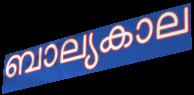
ബാല്യകാല